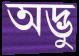
অদ্ভু